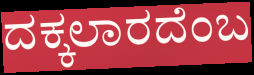
ದಕ್ಕಲಾರದೆಂಬ